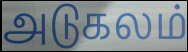
அடுகலம்